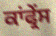
ਕਾਂਫ੍ਰੇਂਸ